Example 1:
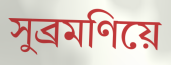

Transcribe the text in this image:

সুব্ৰমণিয়ে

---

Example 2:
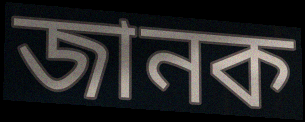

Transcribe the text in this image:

জানক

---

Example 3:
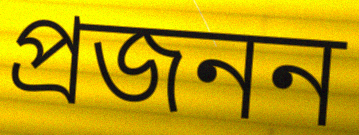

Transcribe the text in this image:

প্ৰজনন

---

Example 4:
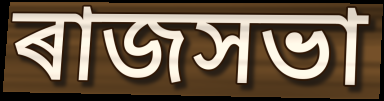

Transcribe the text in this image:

ৰাজসভা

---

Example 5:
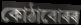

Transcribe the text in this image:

কোঠাবোৰৰ